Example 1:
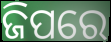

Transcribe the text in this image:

ଜିପରେ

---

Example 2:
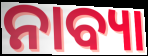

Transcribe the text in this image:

ନାବ୍ୟା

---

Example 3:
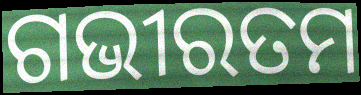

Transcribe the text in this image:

ଗଭୀରତମ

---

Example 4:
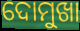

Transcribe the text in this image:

ଦୋମୁଖା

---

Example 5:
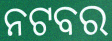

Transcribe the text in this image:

ନଟବର